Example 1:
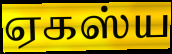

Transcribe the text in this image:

ஏகஸ்ய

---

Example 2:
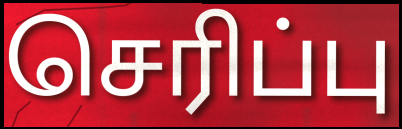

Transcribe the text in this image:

செரிப்பு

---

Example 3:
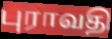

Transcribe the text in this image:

புராவதி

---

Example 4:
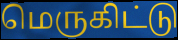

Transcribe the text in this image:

மெருகிட்டு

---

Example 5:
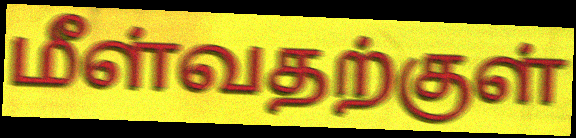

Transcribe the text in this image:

மீள்வதற்குள்